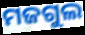
ମଜଗୁଲ